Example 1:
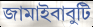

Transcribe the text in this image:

জামাইবাবুটি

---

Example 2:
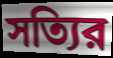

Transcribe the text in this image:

সত্যির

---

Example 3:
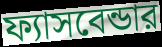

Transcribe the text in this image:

ফ্যাসবেন্ডার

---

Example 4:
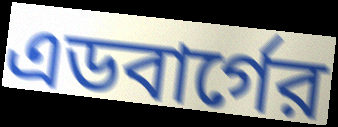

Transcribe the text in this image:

এডবার্গের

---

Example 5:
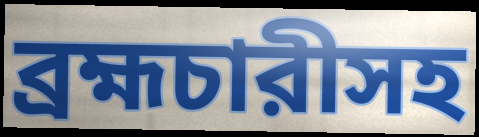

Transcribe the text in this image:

ব্রহ্মচারীসহ